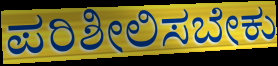
ಪರಿಶೀಲಿಸಬೇಕು